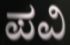
ಪವಿ